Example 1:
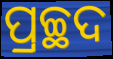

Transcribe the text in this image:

ପ୍ରଚ୍ଛଦ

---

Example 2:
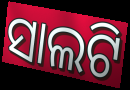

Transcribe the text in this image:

ସାଲଟି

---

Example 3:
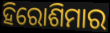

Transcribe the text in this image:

ହିରୋଶିମାର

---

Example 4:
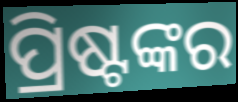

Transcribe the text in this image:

ପ୍ରିଷ୍ଟଙ୍କର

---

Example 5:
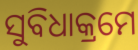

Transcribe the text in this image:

ସୁବିଧାକ୍ରମେ